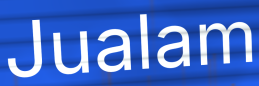
Jualam